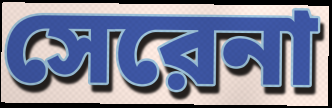
সেরেনা